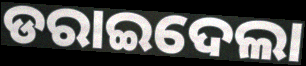
ଡରାଇଦେଲା